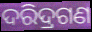
ଦରିଦ୍ରଗଣ